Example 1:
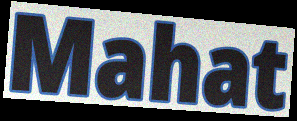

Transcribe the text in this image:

Mahat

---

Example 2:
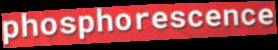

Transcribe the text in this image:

phosphorescence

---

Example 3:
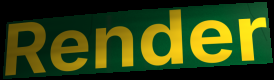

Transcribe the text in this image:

Render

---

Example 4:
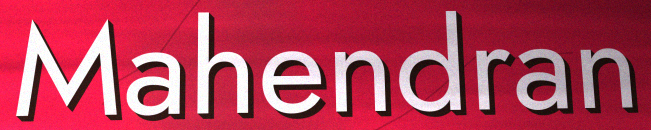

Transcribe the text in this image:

Mahendran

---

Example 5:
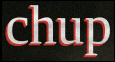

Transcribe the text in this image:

chup